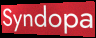
Syndopa